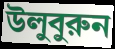
উলুবুরুন